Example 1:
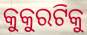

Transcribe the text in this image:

କୁକୁରଟିକୁ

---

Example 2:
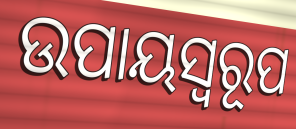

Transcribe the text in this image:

ଉପାୟସ୍ୱରୂପ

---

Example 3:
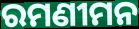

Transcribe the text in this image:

ରମଣୀମନ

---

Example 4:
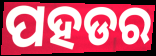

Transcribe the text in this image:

ପହଡର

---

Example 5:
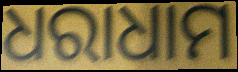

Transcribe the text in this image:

ଧରାଧାମ